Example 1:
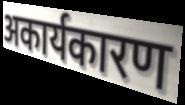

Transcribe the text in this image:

अकार्यकारण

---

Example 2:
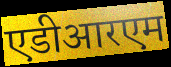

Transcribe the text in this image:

एडीआरएम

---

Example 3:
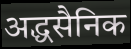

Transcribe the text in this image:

अद्धसैनिक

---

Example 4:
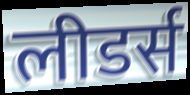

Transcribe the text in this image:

लीडर्स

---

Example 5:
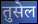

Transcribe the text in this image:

तुसेल